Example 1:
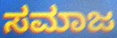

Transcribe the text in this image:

ಸಮಾಜ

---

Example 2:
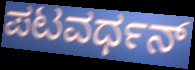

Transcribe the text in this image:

ಪಟವರ್ಧನ್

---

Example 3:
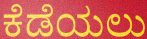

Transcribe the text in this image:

ಕೆಡೆಯಲು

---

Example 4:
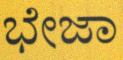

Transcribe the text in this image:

ಭೇಜಾ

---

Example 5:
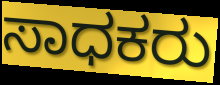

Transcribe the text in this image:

ಸಾಧಕರು